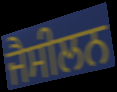
ਜੈਸੀਲਨ